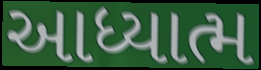
આધ્યાત્મ